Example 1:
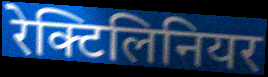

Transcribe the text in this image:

रेक्टिलिनियर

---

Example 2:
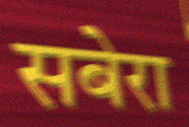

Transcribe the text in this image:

सबेरा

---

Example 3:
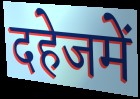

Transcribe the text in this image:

दहेजमें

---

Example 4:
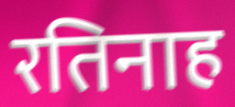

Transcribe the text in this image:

रतिनाह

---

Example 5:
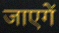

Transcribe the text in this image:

जाएगें